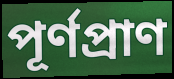
পূর্ণপ্রাণ